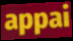
appai